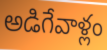
అడిగేవాళ్లం